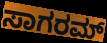
ಸಾಗರಮ್